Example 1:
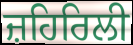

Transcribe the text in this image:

ਜ਼ਹਿਰਿਲੀ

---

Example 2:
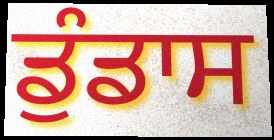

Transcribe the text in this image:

ਡੁੰਡਾਸ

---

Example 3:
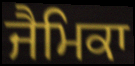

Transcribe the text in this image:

ਜੈਮਿਕਾ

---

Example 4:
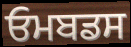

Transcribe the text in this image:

ਓਮਬਡਸ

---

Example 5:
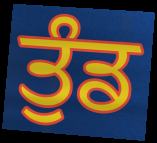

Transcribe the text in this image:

ਤੁੰਡ